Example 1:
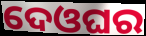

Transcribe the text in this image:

ଦେଓଘର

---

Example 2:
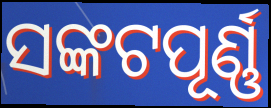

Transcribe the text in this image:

ସଙ୍କଟପୂର୍ଣ୍ଣ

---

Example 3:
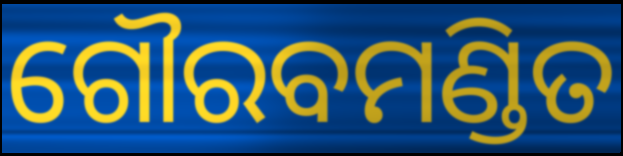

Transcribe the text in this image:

ଗୌରବମଣ୍ଡିତ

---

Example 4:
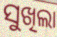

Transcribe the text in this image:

ସୁଖିଲା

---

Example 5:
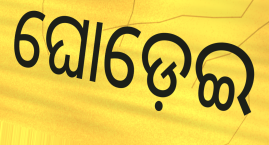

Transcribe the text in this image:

ଘୋଡ଼େଇ